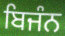
ਬਿਜੰਨ